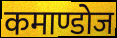
कमाण्डोज